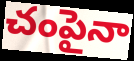
చంపైనా